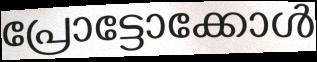
പ്രോട്ടോക്കോൾ